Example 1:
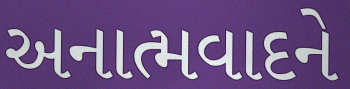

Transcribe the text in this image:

અનાત્મવાદને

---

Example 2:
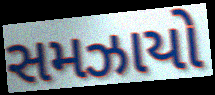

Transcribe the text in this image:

સમઝાયો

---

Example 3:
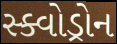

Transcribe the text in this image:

સ્ક્વોડ્રોન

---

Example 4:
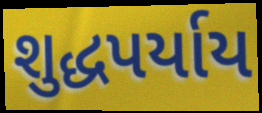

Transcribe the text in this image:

શુદ્ધપર્યાય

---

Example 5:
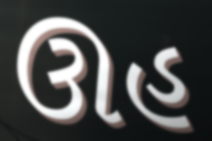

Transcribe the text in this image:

ઊહ